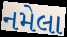
નમેલા